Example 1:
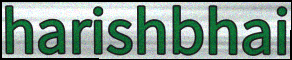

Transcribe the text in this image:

harishbhai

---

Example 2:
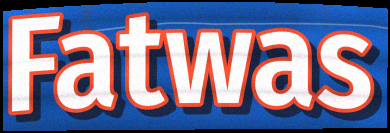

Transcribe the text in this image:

Fatwas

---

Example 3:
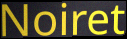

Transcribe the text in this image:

Noiret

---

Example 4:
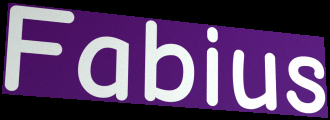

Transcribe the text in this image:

Fabius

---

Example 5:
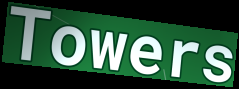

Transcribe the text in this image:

Towers